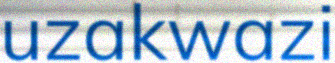
uzakwazi